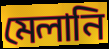
মেলানি